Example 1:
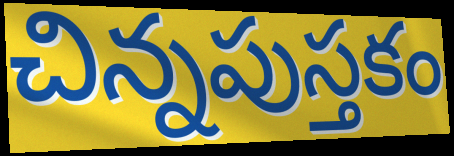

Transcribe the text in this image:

చిన్నపుస్తకం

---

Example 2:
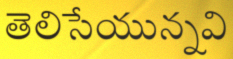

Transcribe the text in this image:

తెలిసేయున్నవి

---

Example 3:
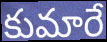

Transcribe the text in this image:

కుమారే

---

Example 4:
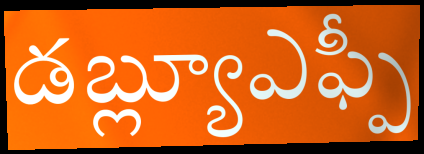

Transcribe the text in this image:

డబ్ల్యూఎఫ్పీ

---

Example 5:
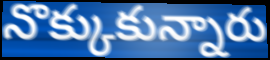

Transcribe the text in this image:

నొక్కుకున్నారు